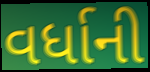
વર્ધાની